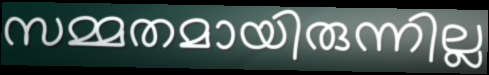
സമ്മതമായിരുന്നില്ല